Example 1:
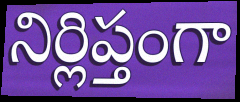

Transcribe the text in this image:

నిర్లిప్తంగా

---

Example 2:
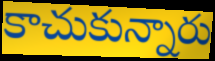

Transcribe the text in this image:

కాచుకున్నారు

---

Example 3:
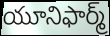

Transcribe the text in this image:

యూనిఫార్మ్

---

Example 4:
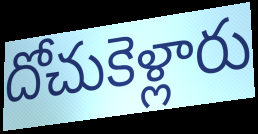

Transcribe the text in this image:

దోచుకెళ్లారు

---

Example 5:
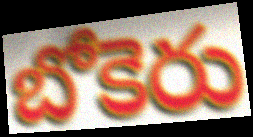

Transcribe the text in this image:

బోకెరు